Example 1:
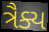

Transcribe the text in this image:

ત્રૈક્ય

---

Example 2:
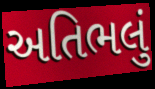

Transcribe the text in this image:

અતિભલું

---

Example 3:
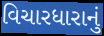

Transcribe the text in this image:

વિચારધારાનું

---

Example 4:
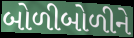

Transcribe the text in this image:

બોળીબોળીને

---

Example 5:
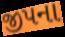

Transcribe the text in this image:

જીપના